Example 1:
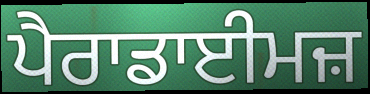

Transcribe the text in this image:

ਪੈਰਾਡਾਈਮਜ਼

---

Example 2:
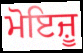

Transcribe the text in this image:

ਮੋਇਜ਼ੂ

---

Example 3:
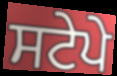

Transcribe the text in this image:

ਸਟੇਪੇ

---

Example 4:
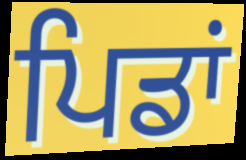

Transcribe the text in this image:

ਪਿਡਾਂ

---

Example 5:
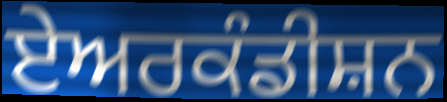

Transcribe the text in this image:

ਏਅਰਕੰਡੀਸ਼ਨ